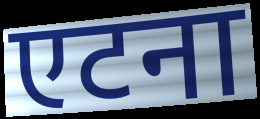
एटना